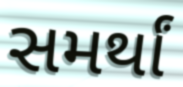
સમર્થાં